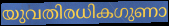
യുവതിരധികഗുണാ